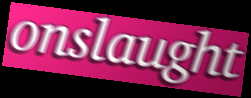
onslaught